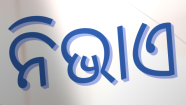
ନିଭାଏ